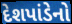
દેશપાંડેનો